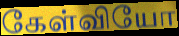
கேள்வியோ